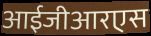
आईजीआरएस